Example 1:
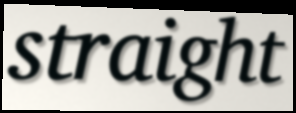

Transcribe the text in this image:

straight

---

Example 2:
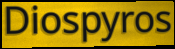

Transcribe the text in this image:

Diospyros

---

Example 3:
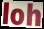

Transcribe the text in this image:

loh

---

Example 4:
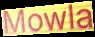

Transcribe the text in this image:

Mowla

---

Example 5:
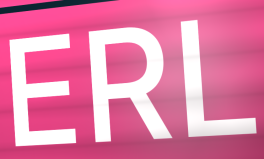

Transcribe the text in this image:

ERL